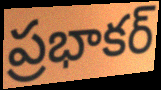
ప్రభాకర్